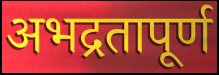
अभद्रतापूर्ण